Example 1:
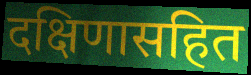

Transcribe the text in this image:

दक्षिणासहित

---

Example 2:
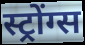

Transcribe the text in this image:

स्ट्रोंग्स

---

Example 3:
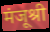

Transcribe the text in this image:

मंजूश्री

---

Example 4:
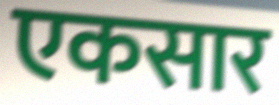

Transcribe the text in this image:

एकसार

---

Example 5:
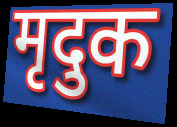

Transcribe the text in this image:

मृदुक